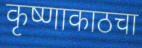
कृष्णाकाठचा